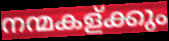
നന്മകള്ക്കും